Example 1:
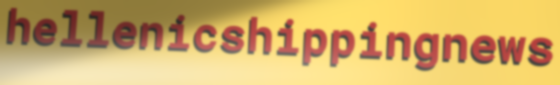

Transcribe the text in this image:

hellenicshippingnews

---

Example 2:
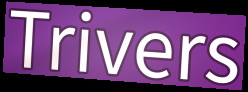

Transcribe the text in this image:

Trivers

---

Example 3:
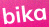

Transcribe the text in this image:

bika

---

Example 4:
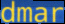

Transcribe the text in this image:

dmar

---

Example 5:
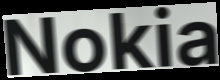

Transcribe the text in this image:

Nokia